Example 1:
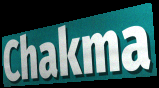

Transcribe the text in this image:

Chakma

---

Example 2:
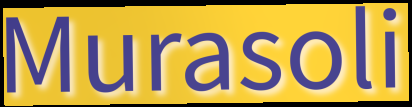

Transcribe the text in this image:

Murasoli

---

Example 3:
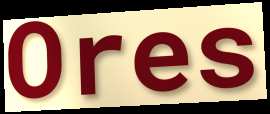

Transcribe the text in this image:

Ores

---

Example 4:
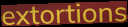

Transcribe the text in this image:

extortions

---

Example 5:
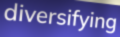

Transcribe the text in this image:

diversifying